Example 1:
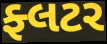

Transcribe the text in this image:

ફ્લટર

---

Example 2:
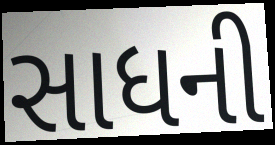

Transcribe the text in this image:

સાધની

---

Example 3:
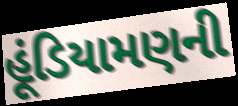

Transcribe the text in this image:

હૂંડિયામણની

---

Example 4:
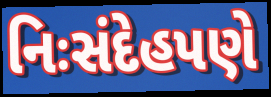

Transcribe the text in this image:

નિઃસંદેહપણે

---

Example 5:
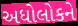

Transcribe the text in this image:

અધોલોકને